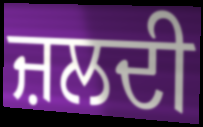
ਜ਼ਲਦੀ